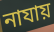
নাযায়